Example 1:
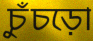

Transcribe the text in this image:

চুঁচড়ো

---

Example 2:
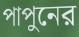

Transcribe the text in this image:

পাপুনের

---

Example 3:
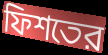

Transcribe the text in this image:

ফিশতের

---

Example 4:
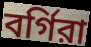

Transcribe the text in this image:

বর্গিরা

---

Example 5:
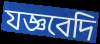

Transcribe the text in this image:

যজ্ঞবেদি